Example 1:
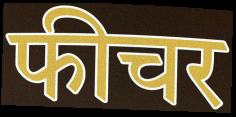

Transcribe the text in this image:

फीचर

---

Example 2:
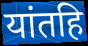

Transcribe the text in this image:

यांतहि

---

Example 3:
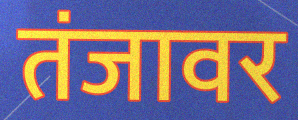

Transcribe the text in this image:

तंजावर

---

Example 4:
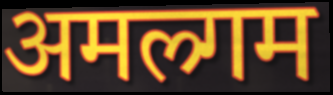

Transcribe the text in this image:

अमल्गम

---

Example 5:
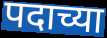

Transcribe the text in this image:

पदाच्या